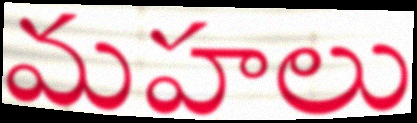
మహలు